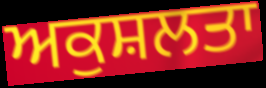
ਅਕੁਸ਼ਲਤਾ